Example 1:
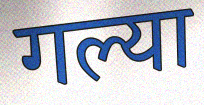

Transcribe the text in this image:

गल्या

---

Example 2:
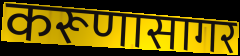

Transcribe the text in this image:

करूणासागर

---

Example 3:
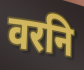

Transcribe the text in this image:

वरनि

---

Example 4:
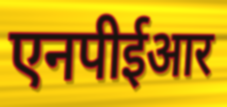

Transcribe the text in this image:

एनपीईआर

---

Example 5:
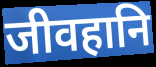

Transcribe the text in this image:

जीवहानि